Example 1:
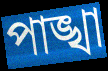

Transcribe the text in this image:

পাঙ্খা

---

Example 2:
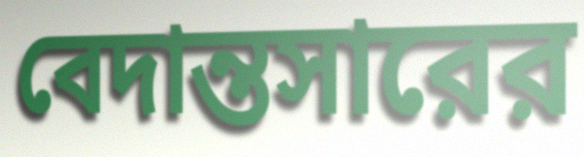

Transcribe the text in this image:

বেদান্তসারের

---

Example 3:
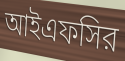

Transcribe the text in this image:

আইএফসির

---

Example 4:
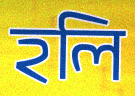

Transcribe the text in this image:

হলি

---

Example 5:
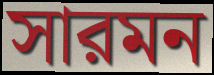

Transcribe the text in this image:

সারমন